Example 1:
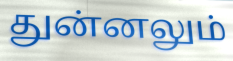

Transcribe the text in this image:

துன்னலும்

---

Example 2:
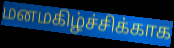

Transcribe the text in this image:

மனமகிழ்ச்சிக்காக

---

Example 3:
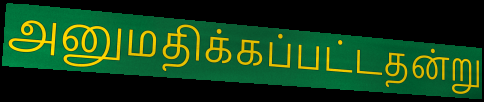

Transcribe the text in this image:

அனுமதிக்கப்பட்டதன்று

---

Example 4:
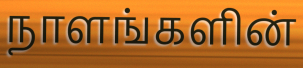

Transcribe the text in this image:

நாளங்களின்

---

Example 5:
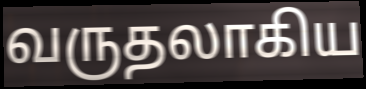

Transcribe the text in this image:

வருதலாகிய